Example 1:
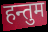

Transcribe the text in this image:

हन्तुम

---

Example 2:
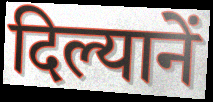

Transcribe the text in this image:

दिल्यानें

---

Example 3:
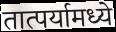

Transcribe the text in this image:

तात्पर्यामध्ये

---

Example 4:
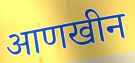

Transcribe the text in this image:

आणखीन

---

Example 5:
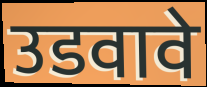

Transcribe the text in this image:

उडवावे